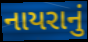
નાયરાનું